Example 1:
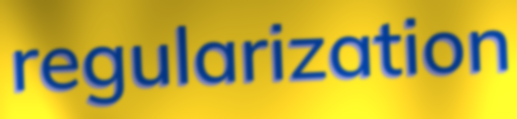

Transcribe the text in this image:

regularization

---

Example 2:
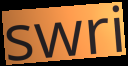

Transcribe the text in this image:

swri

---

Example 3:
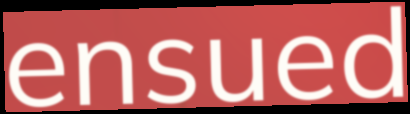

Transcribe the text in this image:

ensued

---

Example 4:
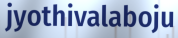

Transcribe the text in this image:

jyothivalaboju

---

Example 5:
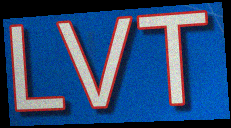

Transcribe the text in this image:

LVT